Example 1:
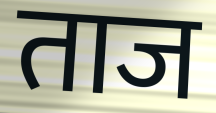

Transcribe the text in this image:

ताज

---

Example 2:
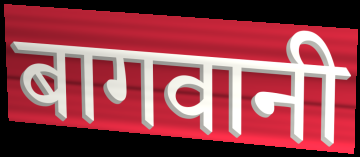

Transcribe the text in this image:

बागवानी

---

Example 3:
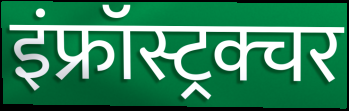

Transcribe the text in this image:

इंफ्रॉस्ट्रक्चर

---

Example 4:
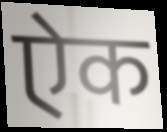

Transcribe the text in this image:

ऐक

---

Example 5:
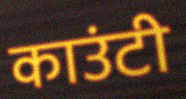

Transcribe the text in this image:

काउंटी